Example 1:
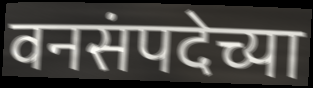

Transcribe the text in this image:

वनसंपदेच्या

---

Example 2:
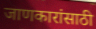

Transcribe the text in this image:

जाणकारांसाठी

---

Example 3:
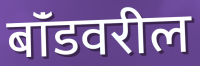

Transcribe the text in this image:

बॉंडवरील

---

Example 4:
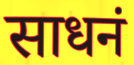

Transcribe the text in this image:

साधनं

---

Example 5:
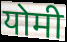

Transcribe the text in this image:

योमी